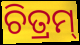
ଚିତ୍ରମ୍